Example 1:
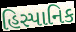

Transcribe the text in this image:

હિસ્પાનિક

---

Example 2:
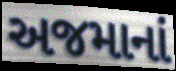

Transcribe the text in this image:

અજમાનાં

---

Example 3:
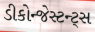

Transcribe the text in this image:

ડીકોન્જેસ્ટન્ટ્સ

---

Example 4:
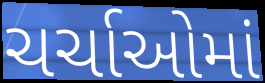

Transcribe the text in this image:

ચર્ચાઓમાં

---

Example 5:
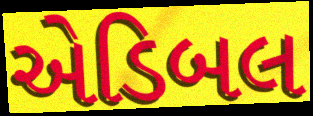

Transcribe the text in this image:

એડિબલ